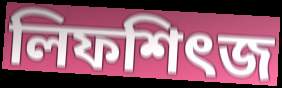
লিফশিৎজ